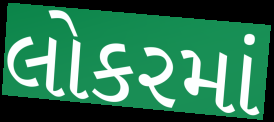
લોકરમાં